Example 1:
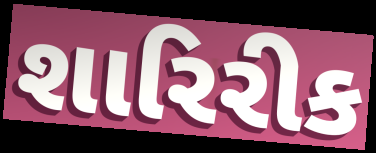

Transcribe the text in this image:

શારિરીક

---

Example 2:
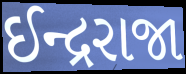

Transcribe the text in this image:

ઈન્દ્રરાજા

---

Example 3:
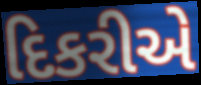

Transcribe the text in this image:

દિકરીએ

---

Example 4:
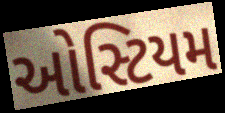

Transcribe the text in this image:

ઓસ્ટિયમ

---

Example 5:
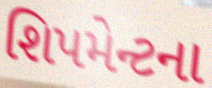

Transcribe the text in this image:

શિપમેન્ટના